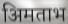
अिमताभ